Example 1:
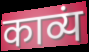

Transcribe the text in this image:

काव्यं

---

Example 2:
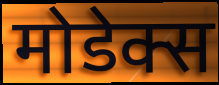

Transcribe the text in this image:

मोडेक्स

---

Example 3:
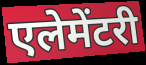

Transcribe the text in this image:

एलेमेंटरी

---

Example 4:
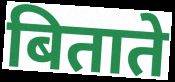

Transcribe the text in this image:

बिताते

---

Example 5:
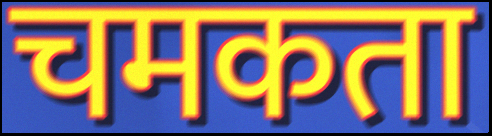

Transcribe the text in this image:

चमकता